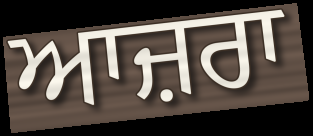
ਆਜ਼ਰਾ